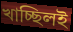
খাচ্ছিলই